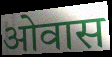
ओवास